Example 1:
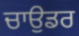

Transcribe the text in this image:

ਚਾਉਡਰ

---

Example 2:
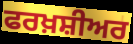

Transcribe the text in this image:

ਫਰਖ਼ਸ਼ੀਅਰ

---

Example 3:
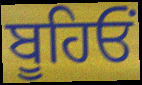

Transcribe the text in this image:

ਬੂਹਿਓਂ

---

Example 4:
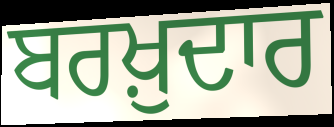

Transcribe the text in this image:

ਬਰਖ਼ੁਦਾਰ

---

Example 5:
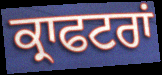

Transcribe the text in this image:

ਕ੍ਰਾਫਟਰਾਂ